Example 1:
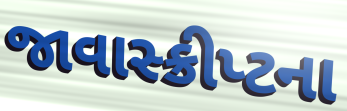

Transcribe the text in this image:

જાવાસ્ક્રીપ્ટના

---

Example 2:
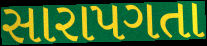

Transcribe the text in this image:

સારાપગતા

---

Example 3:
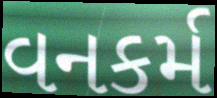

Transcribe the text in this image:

વનકર્મ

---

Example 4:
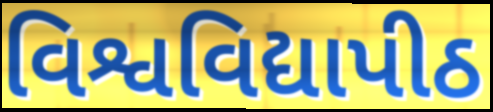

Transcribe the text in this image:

વિશ્વવિદ્યાપીઠ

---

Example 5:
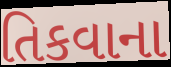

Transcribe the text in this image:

તિકવાના